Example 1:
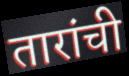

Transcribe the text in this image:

तारांची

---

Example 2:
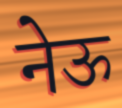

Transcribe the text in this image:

नेऊ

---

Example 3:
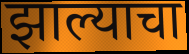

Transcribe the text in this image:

झाल्‍याचा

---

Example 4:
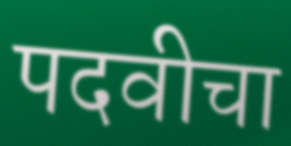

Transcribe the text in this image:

पदवीचा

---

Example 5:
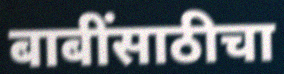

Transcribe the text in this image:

बाबींसाठीचा